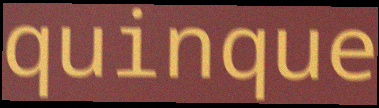
quinque